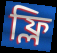
ফ্লি